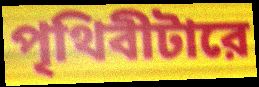
পৃথিবীটারে